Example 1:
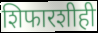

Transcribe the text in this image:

शिफारशीही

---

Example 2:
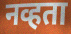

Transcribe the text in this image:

नव्हता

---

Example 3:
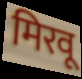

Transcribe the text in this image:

मिरवू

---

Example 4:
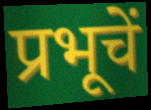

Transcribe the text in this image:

प्रभूचें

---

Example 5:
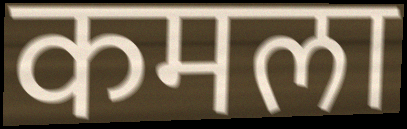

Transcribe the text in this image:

कमला